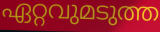
ഏറ്റവുമടുത്ത